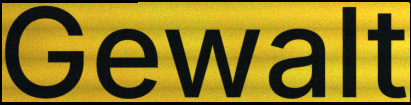
Gewalt